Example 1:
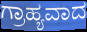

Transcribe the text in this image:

ಗ್ರಾಹ್ಯವಾದ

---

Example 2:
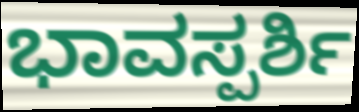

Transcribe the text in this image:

ಭಾವಸ್ಪರ್ಶಿ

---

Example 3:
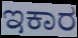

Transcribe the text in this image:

ಇಕಾರ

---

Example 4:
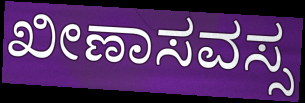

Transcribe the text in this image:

ಖೀಣಾಸವಸ್ಸ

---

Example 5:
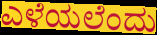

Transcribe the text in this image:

ಎಳೆಯಲೆಂದು